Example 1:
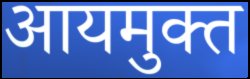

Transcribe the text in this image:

आयमुक्त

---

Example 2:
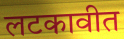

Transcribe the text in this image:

लटकावीत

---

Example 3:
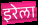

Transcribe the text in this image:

इरेला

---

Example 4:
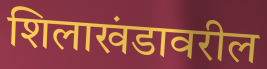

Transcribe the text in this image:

शिलाखंडावरील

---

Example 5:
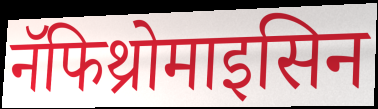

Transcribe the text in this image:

नॅफिथ्रोमाइसिन